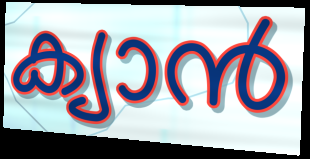
ക്യാൻ